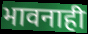
भावनाही